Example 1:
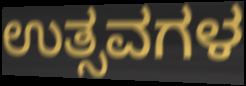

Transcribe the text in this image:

ಉತ್ಸವಗಳ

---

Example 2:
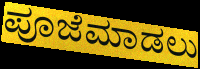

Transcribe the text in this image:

ಪೂಜೆಮಾಡಲು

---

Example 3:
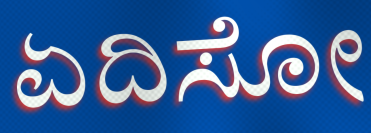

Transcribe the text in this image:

ಏದಿಸೋ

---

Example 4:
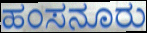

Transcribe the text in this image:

ಹಂಸನೂರು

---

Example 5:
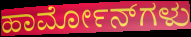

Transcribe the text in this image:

ಹಾರ್ಮೋನ್‌ಗಳು